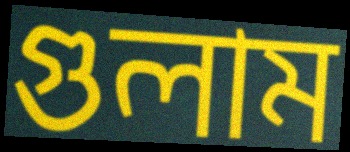
গুলাম